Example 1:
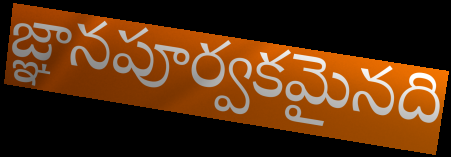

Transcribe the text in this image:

జ్ఞానపూర్వకమైనది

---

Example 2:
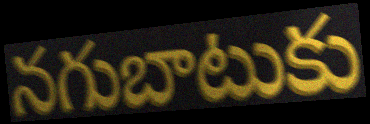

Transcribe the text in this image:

నగుబాటుకు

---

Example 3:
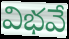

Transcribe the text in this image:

విభవే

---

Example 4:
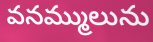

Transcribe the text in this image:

వనమ్ములును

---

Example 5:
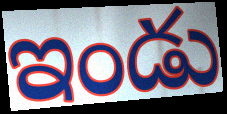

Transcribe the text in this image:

ఇండు